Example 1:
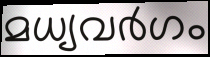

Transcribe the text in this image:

മധ്യവർഗം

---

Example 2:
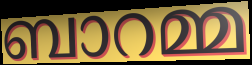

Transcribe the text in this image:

ബാറമ്മ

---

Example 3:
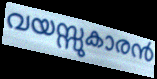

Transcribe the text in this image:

വയസ്സുകാരൻ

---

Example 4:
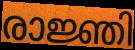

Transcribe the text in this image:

രാജ്ഞി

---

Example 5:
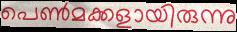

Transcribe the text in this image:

പെൺമക്കളായിരുന്നു